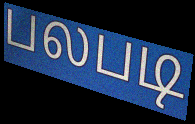
பலபடி